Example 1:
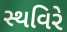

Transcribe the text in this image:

સ્થવિરે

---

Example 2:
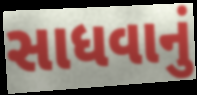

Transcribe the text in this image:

સાધવાનું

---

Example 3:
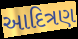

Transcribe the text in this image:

આદિત્રણ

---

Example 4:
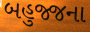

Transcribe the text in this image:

બહુજ્જના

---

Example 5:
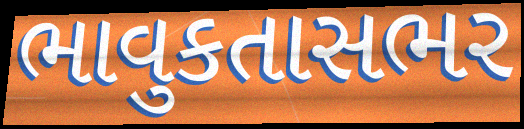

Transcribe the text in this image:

ભાવુકતાસભર